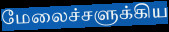
மேலைச்சளுக்கிய